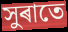
সুৰাতে